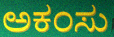
ಅಕಂಸು